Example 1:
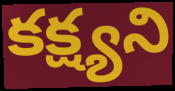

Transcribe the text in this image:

కక్ష్యని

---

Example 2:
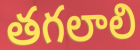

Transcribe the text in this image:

తగలాలి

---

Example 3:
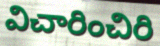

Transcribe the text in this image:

విచారించిరి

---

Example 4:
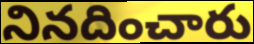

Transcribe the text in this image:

నినదించారు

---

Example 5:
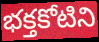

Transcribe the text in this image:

భక్తకోటిని